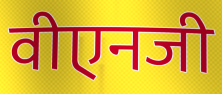
वीएनजी